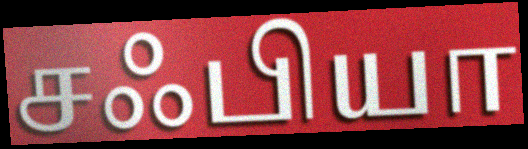
சஃபியா